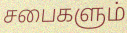
சபைகளும்